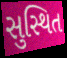
સુસ્થિત